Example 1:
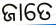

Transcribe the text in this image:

ଜାତେ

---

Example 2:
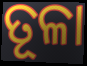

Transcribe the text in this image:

ତୂଳା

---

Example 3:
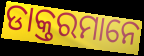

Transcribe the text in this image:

ଡାକ୍ତରମାନେ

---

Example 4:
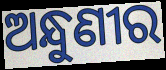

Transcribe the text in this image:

ଅନ୍ଧୁଣୀର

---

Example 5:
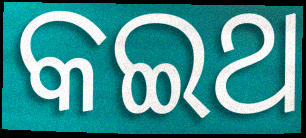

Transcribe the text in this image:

କଇଥ